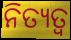
ନିତ୍ୟତ୍ୱ